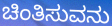
ಚಿಂತಿಸುವನು